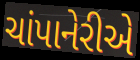
ચાંપાનેરીએ